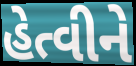
હેત્વીને